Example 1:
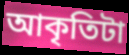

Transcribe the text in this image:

আকৃতিটা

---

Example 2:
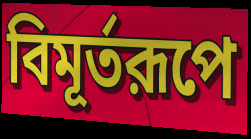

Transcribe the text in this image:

বিমূর্তরূপে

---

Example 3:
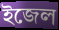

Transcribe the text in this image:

ইজেল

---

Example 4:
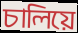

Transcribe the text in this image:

চালিয়ে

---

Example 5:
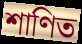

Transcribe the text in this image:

শাণিত